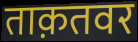
ताक़तवर